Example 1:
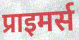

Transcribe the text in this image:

प्राइमर्स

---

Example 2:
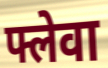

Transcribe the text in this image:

फ्लेवा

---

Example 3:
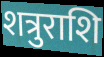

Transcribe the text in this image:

शत्रुराशि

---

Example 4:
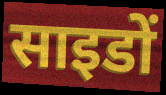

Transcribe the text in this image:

साइडों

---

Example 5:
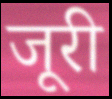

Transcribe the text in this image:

जूरी